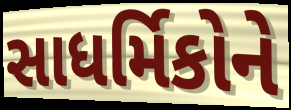
સાધર્મિકોને